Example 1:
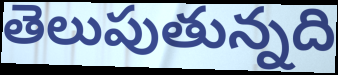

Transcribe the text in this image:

తెలుపుతున్నది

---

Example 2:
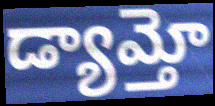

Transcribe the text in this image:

డ్యామ్తో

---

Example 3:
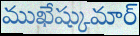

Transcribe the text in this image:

ముఖేష్కుమార్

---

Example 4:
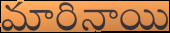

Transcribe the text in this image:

మారినాయి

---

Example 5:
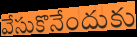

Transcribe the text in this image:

వేసుకొనేందుకు